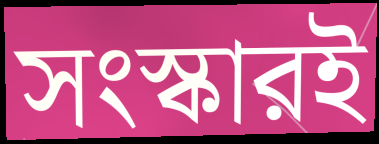
সংস্কারই